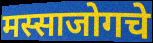
मस्साजोगचे